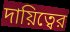
দায়িত্বের